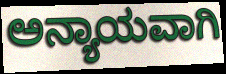
ಅನ್ಯಾಯವಾಗಿ